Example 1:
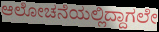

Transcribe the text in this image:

ಆಲೋಚನೆಯಲ್ಲಿದ್ದಾಗಲೇ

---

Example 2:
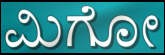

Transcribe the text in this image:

ಮಿಗೋ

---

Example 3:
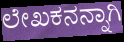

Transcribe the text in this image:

ಲೇಖಕನನ್ನಾಗಿ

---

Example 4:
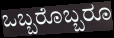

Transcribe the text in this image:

ಒಬ್ಬರೊಬ್ಬರೂ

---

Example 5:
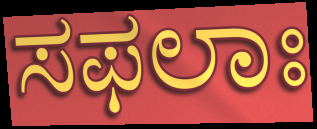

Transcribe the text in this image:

ಸಫಲಾಃ